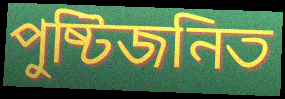
পুষ্টিজনিত